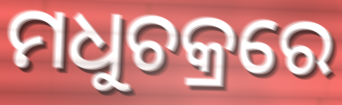
ମଧୁଚକ୍ରରେ